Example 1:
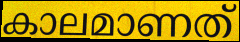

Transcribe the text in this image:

കാലമാണത്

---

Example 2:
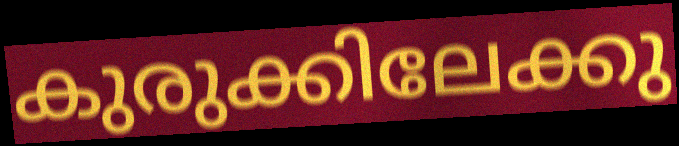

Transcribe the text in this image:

കുരുക്കിലേക്കു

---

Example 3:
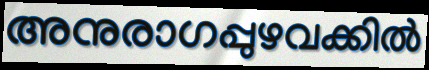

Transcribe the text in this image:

അനുരാഗപ്പുഴവക്കിൽ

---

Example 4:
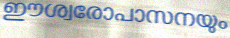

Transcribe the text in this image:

ഈശ്വരോപാസനയും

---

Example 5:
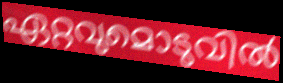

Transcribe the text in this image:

ഏറ്റവുമൊടുവിൽ